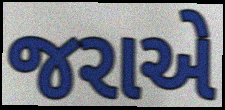
જરાએ